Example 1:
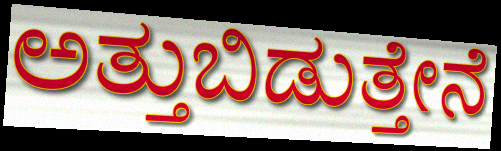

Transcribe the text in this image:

ಅತ್ತುಬಿಡುತ್ತೇನೆ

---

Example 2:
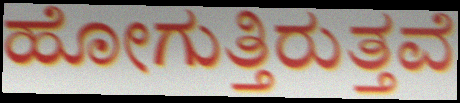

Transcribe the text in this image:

ಹೋಗುತ್ತಿರುತ್ತವೆ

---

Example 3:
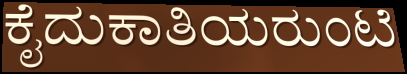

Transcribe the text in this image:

ಕೈದುಕಾತಿಯರುಂಟೆ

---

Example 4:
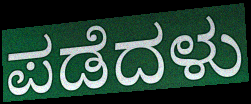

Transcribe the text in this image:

ಪಡೆದಳು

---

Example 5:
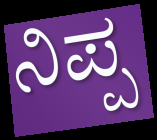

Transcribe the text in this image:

ನಿಪ್ಪ